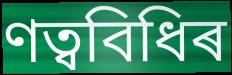
ণত্ববিধিৰ